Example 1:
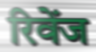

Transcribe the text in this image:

रिवेंज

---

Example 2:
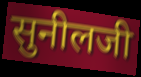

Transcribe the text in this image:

सुनीलजी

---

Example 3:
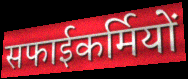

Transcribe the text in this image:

सफाईकर्मियों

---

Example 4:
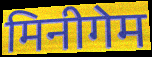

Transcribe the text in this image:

मिनीगेम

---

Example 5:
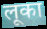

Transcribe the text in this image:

लूका